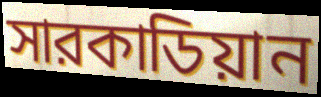
সারকাডিয়ান